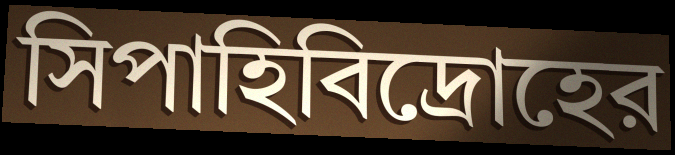
সিপাহিবিদ্রোহের